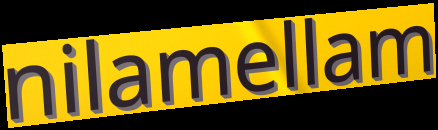
nilamellam